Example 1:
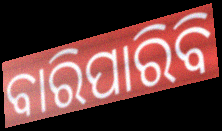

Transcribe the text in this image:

ବାରିପାରିବି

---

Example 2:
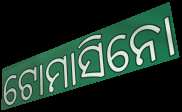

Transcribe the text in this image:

ଟୋମାସିନୋ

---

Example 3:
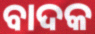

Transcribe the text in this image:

ବାଦକ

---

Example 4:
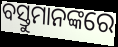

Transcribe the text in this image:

ବସ୍ତୁମାନଙ୍କରେ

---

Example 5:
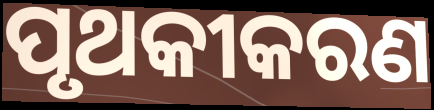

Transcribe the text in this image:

ପୃଥକୀକରଣ